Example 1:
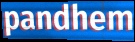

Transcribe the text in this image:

pandhem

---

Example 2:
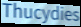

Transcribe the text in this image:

Thucydies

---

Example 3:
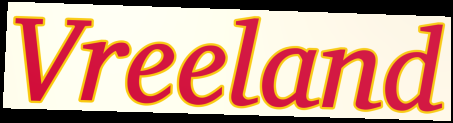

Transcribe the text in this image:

Vreeland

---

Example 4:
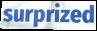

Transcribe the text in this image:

surprized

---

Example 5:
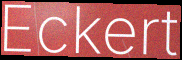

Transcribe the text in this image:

Eckert